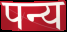
पन्य